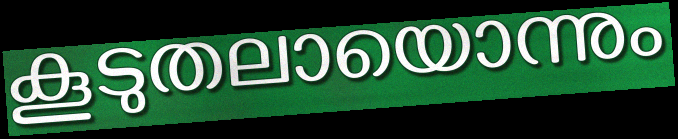
കൂടുതലായൊന്നും